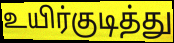
உயிர்குடித்து